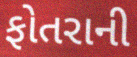
ફોતરાની